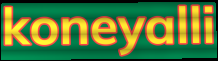
koneyalli